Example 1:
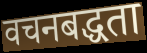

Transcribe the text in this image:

वचनबद्धता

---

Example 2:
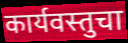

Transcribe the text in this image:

कार्यवस्तुचा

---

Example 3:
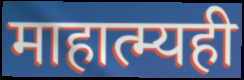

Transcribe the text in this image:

माहात्म्यही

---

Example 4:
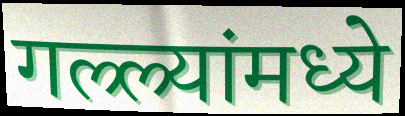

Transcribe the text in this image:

गल्ल्यांमध्ये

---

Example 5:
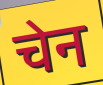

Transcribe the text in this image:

चेन